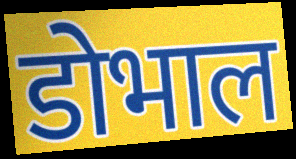
डोभाल